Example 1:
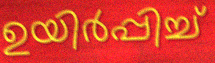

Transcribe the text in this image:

ഉയിർപ്പിച്ച്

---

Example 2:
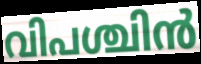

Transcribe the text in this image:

വിപശ്ചിൻ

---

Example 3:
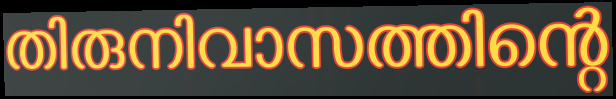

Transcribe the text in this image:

തിരുനിവാസത്തിന്റെ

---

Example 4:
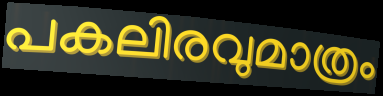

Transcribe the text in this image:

പകലിരവുമാത്രം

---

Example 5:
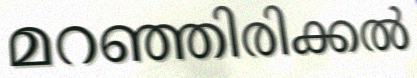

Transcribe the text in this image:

മറഞ്ഞിരിക്കൽ